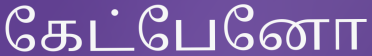
கேட்பேனோ